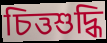
চিত্তশুদ্ধি